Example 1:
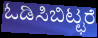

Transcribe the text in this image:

ಓಡಿಸಿಬಿಟ್ಟರೆ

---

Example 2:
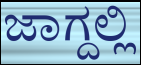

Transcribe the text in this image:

ಜಾಗ್ದಲ್ಲಿ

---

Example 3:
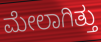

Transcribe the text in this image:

ಮೇಲಾಗಿತ್ತು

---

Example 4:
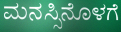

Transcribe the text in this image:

ಮನಸ್ಸಿನೊಳಗೆ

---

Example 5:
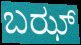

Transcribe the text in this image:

ಬಝ್